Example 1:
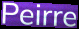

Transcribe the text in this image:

Peirre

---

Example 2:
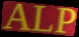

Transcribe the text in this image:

ALP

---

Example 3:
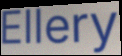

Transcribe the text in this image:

Ellery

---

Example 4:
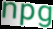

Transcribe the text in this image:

npg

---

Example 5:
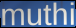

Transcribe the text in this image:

muthi